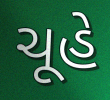
ચૂહે